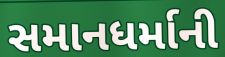
સમાનધર્માની